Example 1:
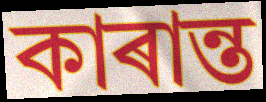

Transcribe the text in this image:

কাৰান্ত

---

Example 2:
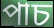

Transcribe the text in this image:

পাচ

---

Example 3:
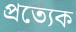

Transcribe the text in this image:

প্ৰত্যেক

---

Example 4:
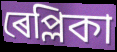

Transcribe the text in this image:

ৰেপ্লিকা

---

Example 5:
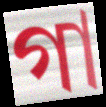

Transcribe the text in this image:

গা